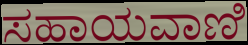
ಸಹಾಯವಾಣಿ